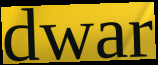
dwar